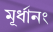
মূর্ধানং